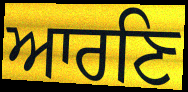
ਆਰਣਿ